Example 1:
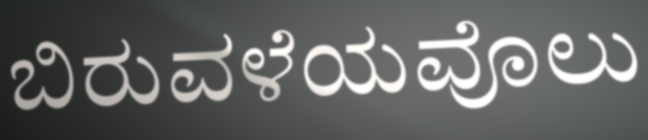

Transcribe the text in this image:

ಬಿರುವಳೆಯವೊಲು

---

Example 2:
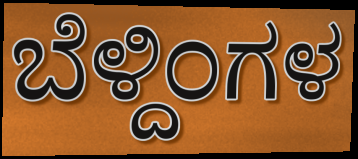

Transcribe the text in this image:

ಬೆಳ್ದಿಂಗಳ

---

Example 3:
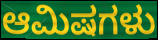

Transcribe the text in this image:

ಆಮಿಷಗಳು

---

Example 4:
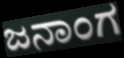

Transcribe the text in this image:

ಜನಾಂಗ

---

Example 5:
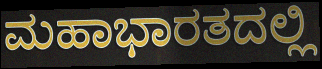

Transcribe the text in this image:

ಮಹಾಭಾರತದಲ್ಲಿ